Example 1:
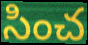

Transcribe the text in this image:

సించ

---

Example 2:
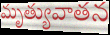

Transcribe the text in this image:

మృత్యువాతన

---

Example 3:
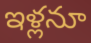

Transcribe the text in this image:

ఇళ్లనూ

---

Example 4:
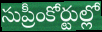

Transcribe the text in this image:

సుప్రీంకోర్టుల్లో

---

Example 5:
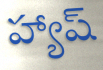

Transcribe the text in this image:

హ్యాష్